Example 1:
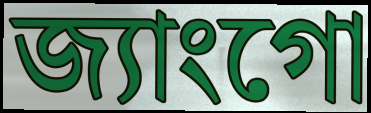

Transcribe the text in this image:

জ্যাংগো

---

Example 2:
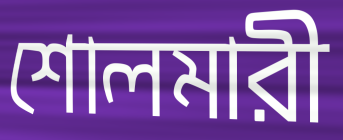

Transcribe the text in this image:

শোলমারী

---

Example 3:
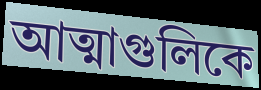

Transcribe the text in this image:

আত্মাগুলিকে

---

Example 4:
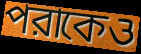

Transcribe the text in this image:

পরাকেও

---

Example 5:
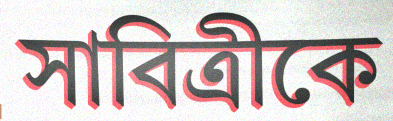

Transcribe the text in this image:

সাবিত্রীকে